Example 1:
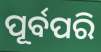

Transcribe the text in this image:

ପୂର୍ବପରି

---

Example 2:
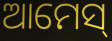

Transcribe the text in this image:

ଆମେସ୍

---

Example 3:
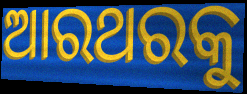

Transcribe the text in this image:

ଆରଥରକୁ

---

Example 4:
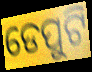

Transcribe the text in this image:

ଡେପୁଟି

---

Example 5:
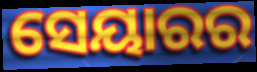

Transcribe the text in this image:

ସେୟାରର